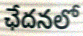
ఛేదనలో